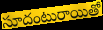
సూదంటురాయితో